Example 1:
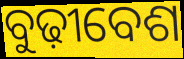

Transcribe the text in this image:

ବୁଢ଼ୀବେଶ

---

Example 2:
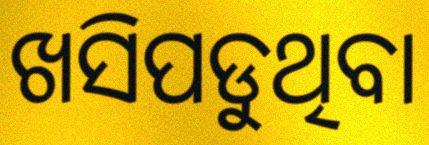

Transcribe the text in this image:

ଖସିପଡୁଥିବା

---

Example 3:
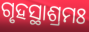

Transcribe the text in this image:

ଗୃହସ୍ଥାଶ୍ରମଃ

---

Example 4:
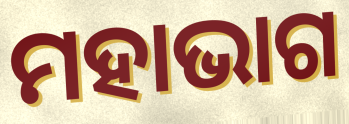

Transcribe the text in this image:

ମହାଭାଗ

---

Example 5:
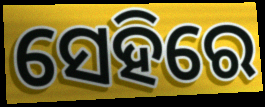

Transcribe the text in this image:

ସେହିରେ